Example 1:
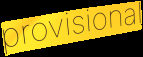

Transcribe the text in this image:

provisional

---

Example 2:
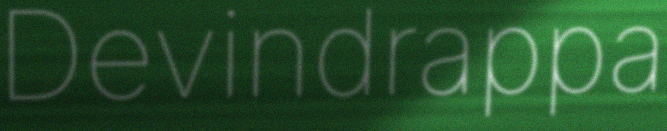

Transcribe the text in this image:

Devindrappa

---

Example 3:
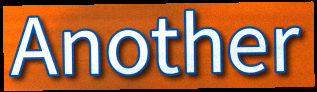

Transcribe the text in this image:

Another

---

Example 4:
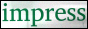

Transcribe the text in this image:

impress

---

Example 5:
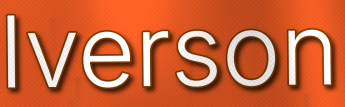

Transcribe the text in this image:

Iverson